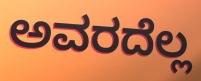
ಅವರದೆಲ್ಲ